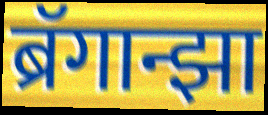
ब्रॅगान्झा